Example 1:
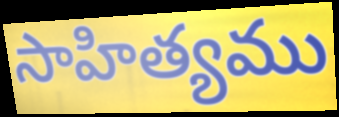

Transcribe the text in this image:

సాహిత్యము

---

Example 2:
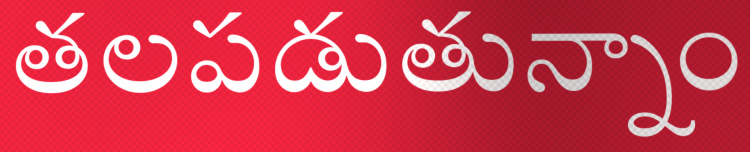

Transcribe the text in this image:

తలపడుతున్నాం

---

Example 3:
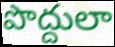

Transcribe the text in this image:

పొద్దులా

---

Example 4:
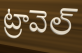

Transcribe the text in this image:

ట్రావెల్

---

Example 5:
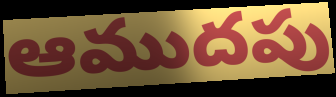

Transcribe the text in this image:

ఆముదపు